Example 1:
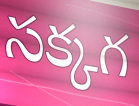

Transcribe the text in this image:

సక్కగ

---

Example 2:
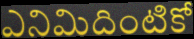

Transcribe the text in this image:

ఎనిమిదింటికో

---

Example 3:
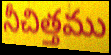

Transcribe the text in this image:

నీచిత్తము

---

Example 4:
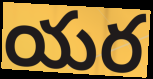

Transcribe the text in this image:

యర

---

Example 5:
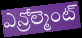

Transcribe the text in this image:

ఎన్రోల్మెంట్